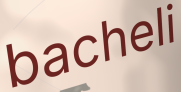
bacheli